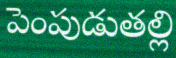
పెంపుడుతల్లి